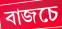
বাজচে